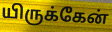
யிருக்கேன்